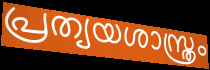
പ്രത്യയശാസ്ത്രം